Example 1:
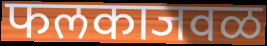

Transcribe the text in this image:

फलकाजवळ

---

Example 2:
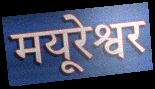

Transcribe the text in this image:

मयूरेश्वर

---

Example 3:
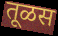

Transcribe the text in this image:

तूळस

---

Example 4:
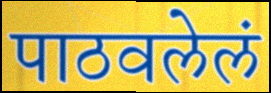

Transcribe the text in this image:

पाठवलेलं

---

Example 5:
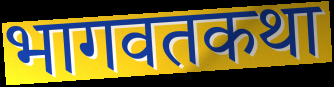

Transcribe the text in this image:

भागवतकथा